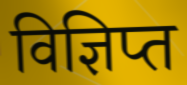
विज्ञिप्त